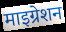
माइग्रेशन